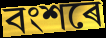
বংশৰে